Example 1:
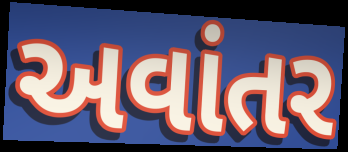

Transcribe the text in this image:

અવાંતર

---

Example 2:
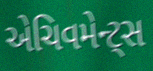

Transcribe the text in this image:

એચિવમેન્ટ્સ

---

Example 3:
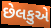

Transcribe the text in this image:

છેલકુએ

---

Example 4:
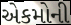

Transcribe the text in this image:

એકમોની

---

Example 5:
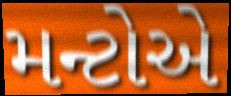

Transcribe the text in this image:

મન્ટોએ